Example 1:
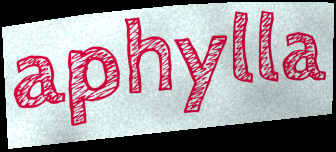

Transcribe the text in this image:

aphylla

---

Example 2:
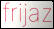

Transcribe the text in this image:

frijaz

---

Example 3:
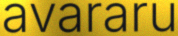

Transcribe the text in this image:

avararu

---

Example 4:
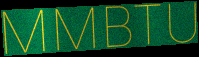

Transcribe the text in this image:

MMBTU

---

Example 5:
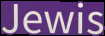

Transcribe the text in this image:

Jewis